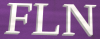
FLN